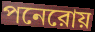
পনেরোয়